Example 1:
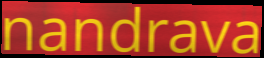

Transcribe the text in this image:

nandrava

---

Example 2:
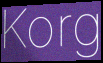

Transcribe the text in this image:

Korg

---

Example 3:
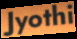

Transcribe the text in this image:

Jyothi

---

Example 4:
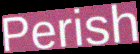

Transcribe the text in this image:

Perish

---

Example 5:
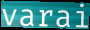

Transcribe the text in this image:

varai